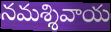
నమశ్శివాయ